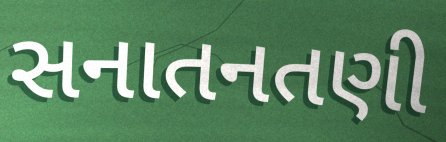
સનાતનતણી